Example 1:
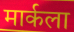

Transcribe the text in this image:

मार्कला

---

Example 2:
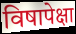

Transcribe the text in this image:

विषापेक्षा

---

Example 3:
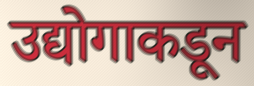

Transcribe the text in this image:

उद्योगाकडून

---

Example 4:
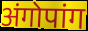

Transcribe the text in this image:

अंगोपांग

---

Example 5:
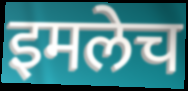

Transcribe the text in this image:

इमलेच